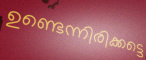
ഉണ്ടെന്നിരിക്കട്ടെ